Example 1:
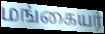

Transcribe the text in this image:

மங்கையர்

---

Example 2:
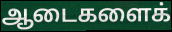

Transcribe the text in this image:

ஆடைகளைக்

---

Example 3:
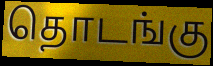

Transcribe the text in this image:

தொடங்கு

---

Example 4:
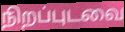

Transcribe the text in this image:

நிறப்புடவை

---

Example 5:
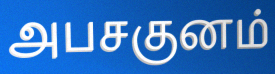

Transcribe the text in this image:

அபசகுனம்